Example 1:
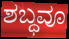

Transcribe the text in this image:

ಶಬ್ಧವೂ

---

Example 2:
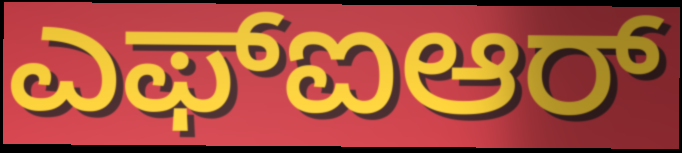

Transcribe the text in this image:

ಎಫ್ಐಆರ್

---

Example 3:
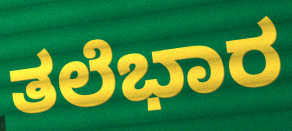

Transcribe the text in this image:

ತಲೆಭಾರ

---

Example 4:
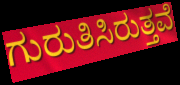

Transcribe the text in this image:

ಗುರುತಿಸಿರುತ್ತವೆ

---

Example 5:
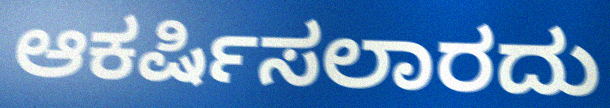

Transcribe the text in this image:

ಆಕರ್ಷಿಸಲಾರದು